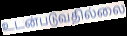
உடன்படுவதில்லை